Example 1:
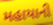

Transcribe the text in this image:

મહાયાની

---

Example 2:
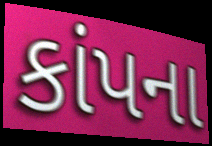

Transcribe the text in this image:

કાંપના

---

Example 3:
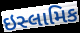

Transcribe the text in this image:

ઇસ્લામિક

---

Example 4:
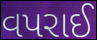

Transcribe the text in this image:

વપરાઈ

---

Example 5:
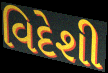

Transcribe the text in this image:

વિદેશી